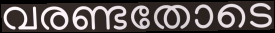
വരണ്ടതോടെ